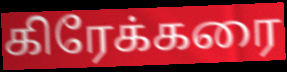
கிரேக்கரை